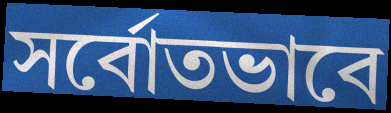
সর্বোতভাবে